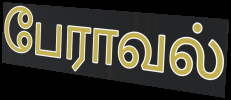
பேராவல்